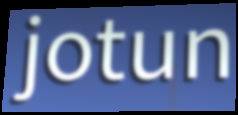
jotun